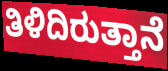
ತಿಳಿದಿರುತ್ತಾನೆ